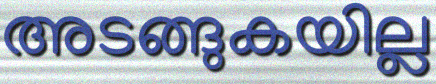
അടങ്ങുകയില്ല